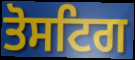
ਤੋਸਟਿਗ